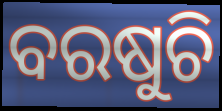
ବରଷୁଚି